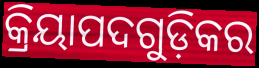
କ୍ରିୟାପଦଗୁଡ଼ିକର